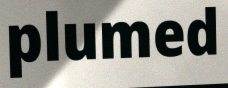
plumed